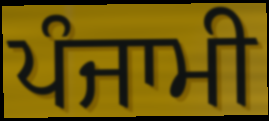
ਪੰਜਾਮੀ